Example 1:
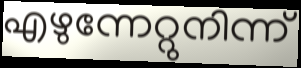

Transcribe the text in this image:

എഴുന്നേറ്റുനിന്ന്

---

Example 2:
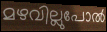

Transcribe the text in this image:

മഴവില്ലുപോൽ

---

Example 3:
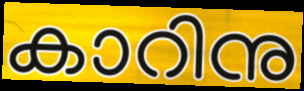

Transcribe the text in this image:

കാറിനു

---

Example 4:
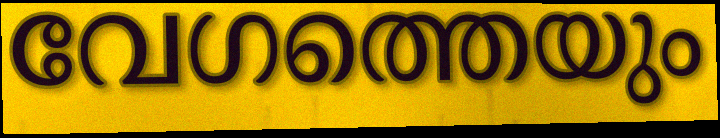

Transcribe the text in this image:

വേഗത്തെയും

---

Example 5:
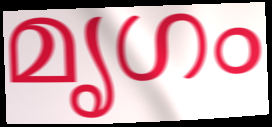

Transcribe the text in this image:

മൃഗം